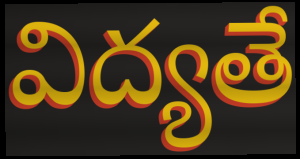
విద్యతే